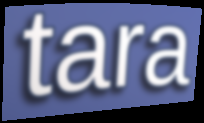
tara